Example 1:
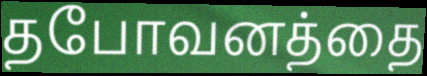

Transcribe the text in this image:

தபோவனத்தை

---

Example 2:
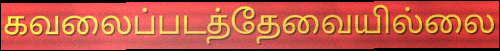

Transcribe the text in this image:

கவலைப்படத்தேவையில்லை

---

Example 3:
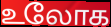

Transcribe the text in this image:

உலோக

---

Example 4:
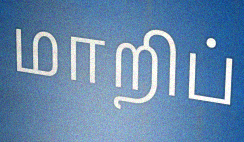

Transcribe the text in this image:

மாறிப்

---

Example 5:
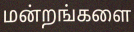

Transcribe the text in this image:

மன்றங்களை